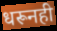
धरूनही